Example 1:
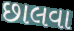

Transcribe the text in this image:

છાલવા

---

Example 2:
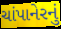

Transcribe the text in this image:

ચાંપાનેરનું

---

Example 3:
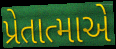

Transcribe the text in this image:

પ્રેતાત્માએ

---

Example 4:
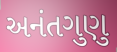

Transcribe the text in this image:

અનંતગુણુ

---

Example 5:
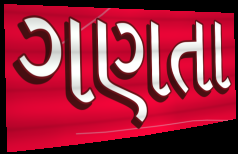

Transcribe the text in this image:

ગણતા